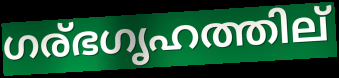
ഗര്ഭഗൃഹത്തില്